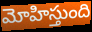
మోహిస్తుంది